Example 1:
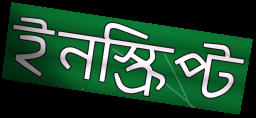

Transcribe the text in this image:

ইনস্ক্রিপ্ট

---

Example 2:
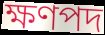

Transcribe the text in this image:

ক্ষণপদ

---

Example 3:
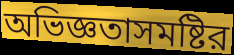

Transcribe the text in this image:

অভিজ্ঞতাসমষ্টির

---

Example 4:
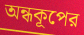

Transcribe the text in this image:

অন্ধকূপের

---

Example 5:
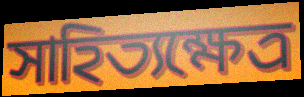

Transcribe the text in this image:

সাহিত্যক্ষেত্র